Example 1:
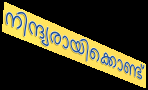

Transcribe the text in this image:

നിന്ദ്യരായിക്കൊണ്ട്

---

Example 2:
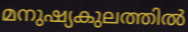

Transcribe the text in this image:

മനുഷ്യകുലത്തിൽ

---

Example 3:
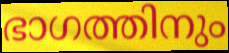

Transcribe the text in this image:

ഭാഗത്തിനും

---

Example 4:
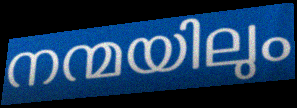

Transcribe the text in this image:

നന്മയിലും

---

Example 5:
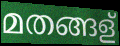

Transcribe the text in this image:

മതങ്ങള്